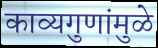
काव्यगुणांमुळे